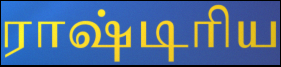
ராஷ்டிரிய